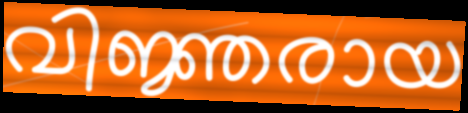
വിജ്ഞരായ